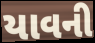
યાવની